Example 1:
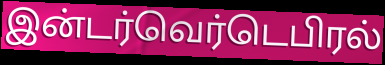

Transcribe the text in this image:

இன்டர்வெர்டெபிரல்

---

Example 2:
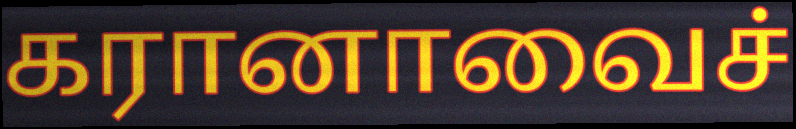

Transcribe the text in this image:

கரானாவைச்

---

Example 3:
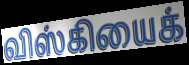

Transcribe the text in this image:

விஸ்கியைக்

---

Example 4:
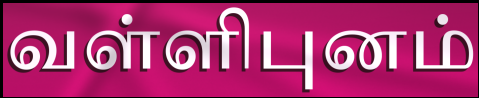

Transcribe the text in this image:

வள்ளிபுனம்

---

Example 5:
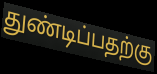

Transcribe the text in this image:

துண்டிப்பதற்கு